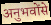
अनुभवोंसे